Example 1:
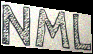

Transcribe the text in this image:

NML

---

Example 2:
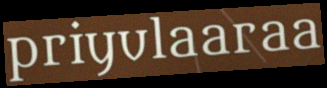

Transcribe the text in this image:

priyulaaraa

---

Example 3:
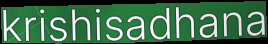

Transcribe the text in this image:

krishisadhana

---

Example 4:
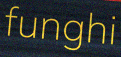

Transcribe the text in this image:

funghi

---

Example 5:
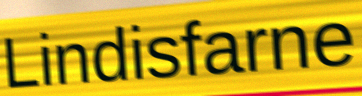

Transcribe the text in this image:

Lindisfarne